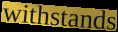
withstands